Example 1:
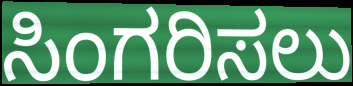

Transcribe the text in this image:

ಸಿಂಗರಿಸಲು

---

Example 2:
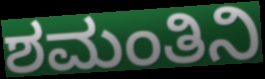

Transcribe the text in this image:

ಶಮಂತಿನಿ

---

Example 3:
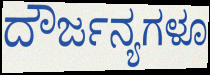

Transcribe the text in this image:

ದೌರ್ಜನ್ಯಗಳೂ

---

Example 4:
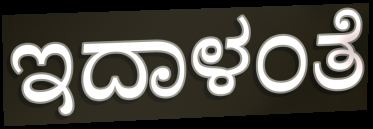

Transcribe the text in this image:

ಇದಾಳಂತೆ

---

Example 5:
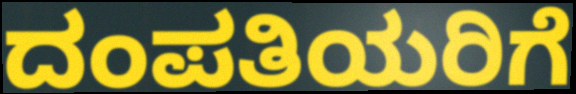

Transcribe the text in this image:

ದಂಪತಿಯರಿಗೆ